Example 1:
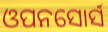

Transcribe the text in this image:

ଓପନସୋର୍ସ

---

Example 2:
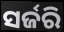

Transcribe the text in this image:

ସର୍ଜରି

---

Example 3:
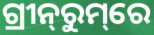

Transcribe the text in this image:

ଗ୍ରୀନ୍‌ରୁମ୍‌ରେ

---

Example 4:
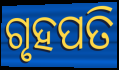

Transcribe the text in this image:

ଗୃହପତି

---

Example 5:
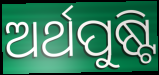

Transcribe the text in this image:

ଅର୍ଥପୁଷ୍ଟି